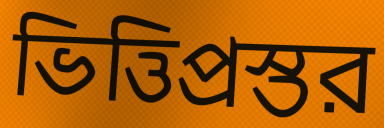
ভিত্তিপ্রস্তর